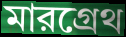
মারগ্রেথ